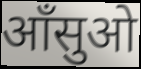
आँसुओ